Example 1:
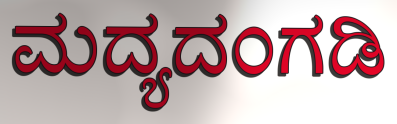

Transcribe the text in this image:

ಮದ್ಯದಂಗಡಿ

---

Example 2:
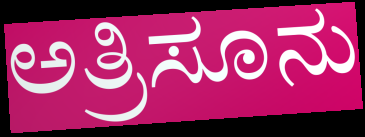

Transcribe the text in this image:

ಅತ್ರಿಸೂನು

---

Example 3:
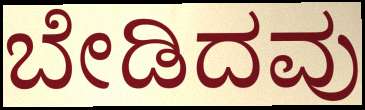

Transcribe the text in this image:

ಬೇಡಿದವು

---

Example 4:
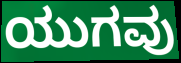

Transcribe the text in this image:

ಯುಗವು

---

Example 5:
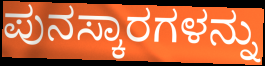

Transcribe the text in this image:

ಪುನಸ್ಕಾರಗಳನ್ನು